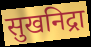
सुखनिद्रा